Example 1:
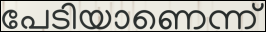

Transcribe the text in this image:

പേടിയാണെന്ന്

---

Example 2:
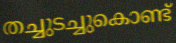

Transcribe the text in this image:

തച്ചുടച്ചുകൊണ്ട്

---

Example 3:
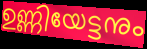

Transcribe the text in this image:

ഉണ്ണിയേട്ടനും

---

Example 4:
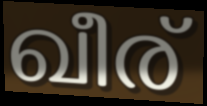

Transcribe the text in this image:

ഖീര്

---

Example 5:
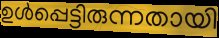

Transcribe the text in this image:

ഉൾപ്പെട്ടിരുന്നതായി